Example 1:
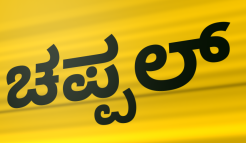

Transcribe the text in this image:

ಚಪ್ಪಲ್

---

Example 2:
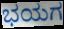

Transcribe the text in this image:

ಭಯಗ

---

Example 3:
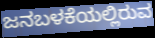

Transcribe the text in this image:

ಜನಬಳಕೆಯಲ್ಲಿರುವ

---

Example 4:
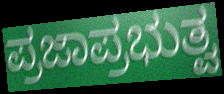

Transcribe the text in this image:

ಪ್ರಜಾಪ್ರಭುತ್ವ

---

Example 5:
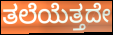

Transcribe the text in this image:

ತಲೆಯೆತ್ತದೇ